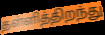
தள்ளித்திறந்து